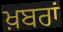
ਖ਼ਬਰਾਂ